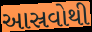
આસ્રવોથી